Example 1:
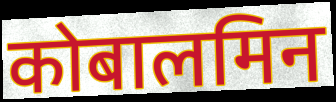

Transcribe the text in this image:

कोबालमिन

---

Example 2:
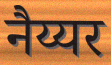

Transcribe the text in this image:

नैय्यर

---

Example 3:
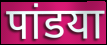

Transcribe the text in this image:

पांडया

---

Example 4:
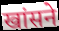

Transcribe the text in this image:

खांसने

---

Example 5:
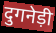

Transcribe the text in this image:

दुगनेड़ी